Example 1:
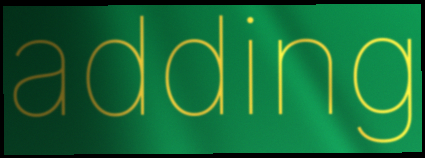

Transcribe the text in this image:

adding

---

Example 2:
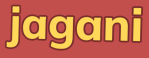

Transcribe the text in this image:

jagani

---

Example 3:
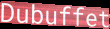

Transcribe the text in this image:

Dubuffet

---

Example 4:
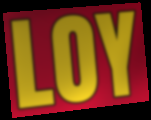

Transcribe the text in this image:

LOY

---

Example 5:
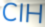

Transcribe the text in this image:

CIH